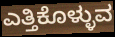
ಎತ್ತಿಕೊಳ್ಳುವ